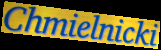
Chmielnicki